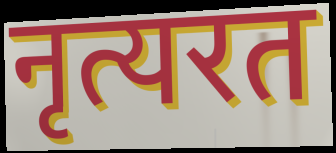
नृत्यरत